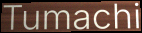
Tumachi